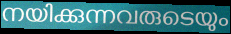
നയിക്കുന്നവരുടെയും